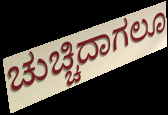
ಚುಚ್ಚಿದಾಗಲೂ